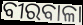
ବୀରବାଳା